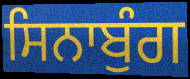
ਸਿਨਾਬੁੰਗ